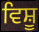
ਵਿਸ਼ੂ